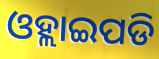
ଓହ୍ଲାଇପଡି